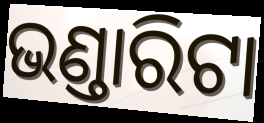
ଭଣ୍ଡାରିଟା